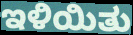
ಇಳಿಯಿತು